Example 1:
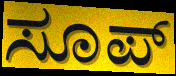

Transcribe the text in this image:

ಸೂಪ್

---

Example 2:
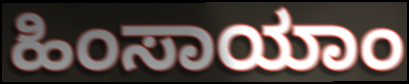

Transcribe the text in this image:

ಹಿಂಸಾಯಾಂ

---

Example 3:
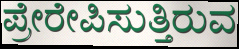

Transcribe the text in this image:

ಪ್ರೇರೇಪಿಸುತ್ತಿರುವ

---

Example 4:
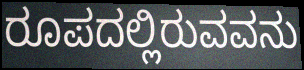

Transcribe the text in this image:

ರೂಪದಲ್ಲಿರುವವನು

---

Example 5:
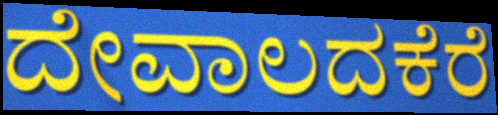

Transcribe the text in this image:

ದೇವಾಲದಕೆರೆ